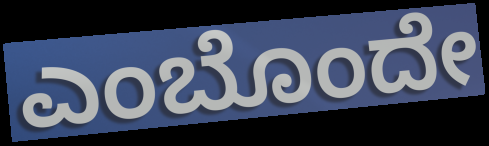
ಎಂಬೊಂದೇ